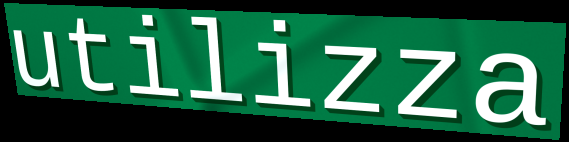
utilizza